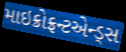
માઇક્રોફ્રન્ટએન્ડ્સ